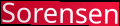
Sorensen